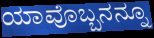
ಯಾವೊಬ್ಬನನ್ನೂ